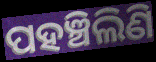
ପହଞ୍ଚିଲିଣି